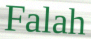
Falah